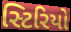
સ્ટિરિયો